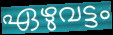
ഏഴുവട്ടം